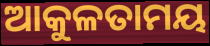
ଆକୁଳତାମୟ